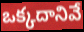
ఒక్కదానివే